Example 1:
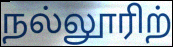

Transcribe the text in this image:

நல்லூரிற்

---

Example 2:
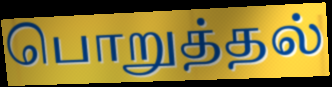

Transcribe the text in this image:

பொறுத்தல்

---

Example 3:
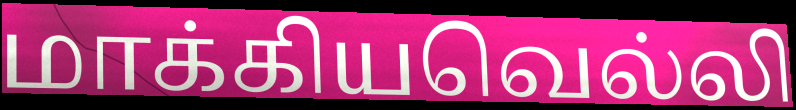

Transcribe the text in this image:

மாக்கியவெல்லி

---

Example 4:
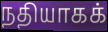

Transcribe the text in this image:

நதியாகக்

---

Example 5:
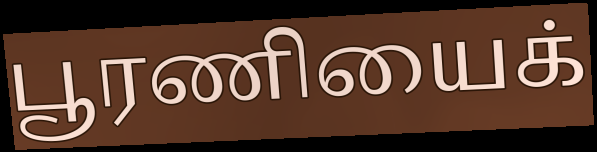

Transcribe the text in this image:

பூரணியைக்